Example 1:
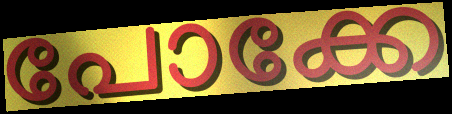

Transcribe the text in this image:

പോക്കേ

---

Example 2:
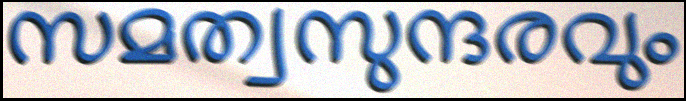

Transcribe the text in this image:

സമത്വസുന്ദരവും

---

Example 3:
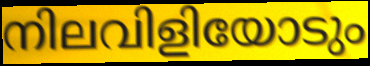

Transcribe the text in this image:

നിലവിളിയോടും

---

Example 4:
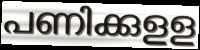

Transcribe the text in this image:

പണിക്കുളള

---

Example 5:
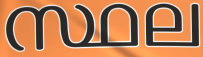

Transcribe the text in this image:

സ്ഥല